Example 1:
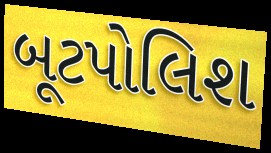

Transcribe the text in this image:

બૂટપોલિશ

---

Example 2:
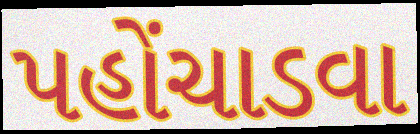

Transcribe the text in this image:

પહોંચાડવા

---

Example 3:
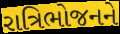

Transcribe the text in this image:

રાત્રિભોજનને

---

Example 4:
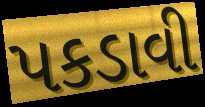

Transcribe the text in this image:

પકડાવી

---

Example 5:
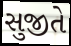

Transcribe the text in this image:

સુજીતે